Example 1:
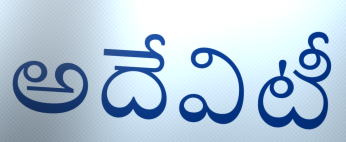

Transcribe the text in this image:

అదేవిటీ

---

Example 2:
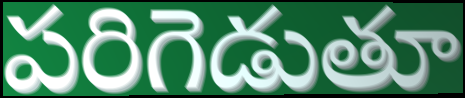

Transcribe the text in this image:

పరిగెడుతూ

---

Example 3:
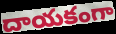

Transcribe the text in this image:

దాయకంగా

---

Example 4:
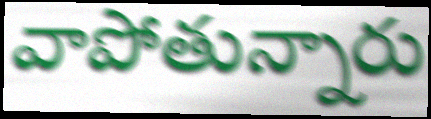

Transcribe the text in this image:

వాపోతున్నారు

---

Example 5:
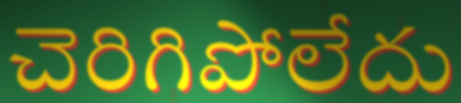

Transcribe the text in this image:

చెరిగిపోలేదు